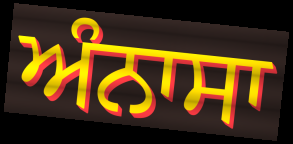
ਅੰਨਾਸਾ